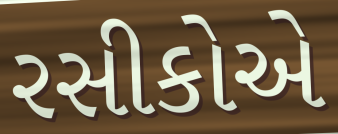
રસીકોએ